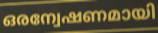
ഒരന്വേഷണമായി